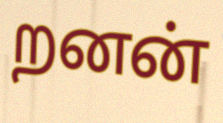
றனன்